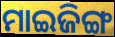
ମାଇଜିଙ୍ଗ